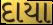
દાયા